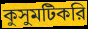
কুসুমটিকরি